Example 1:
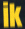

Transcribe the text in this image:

ik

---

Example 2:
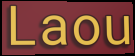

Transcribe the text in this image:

Laou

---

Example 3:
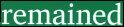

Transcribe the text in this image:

remained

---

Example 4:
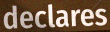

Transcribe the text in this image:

declares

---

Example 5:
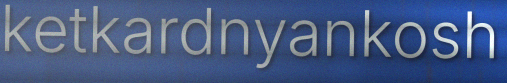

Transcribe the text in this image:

ketkardnyankosh